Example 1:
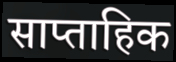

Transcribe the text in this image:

साप्‍ताहिक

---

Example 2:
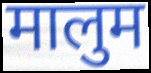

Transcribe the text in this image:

मालुम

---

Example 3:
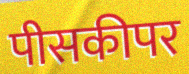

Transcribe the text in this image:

पीसकीपर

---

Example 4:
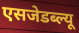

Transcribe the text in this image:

एसजेडब्ल्यू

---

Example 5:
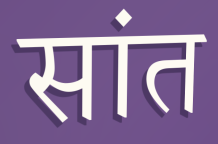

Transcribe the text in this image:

सांत